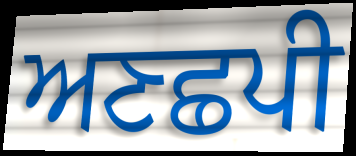
ਅਣਛਪੀ